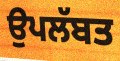
ਉਪਲੱਬਤ